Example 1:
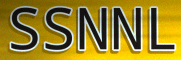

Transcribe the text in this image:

SSNNL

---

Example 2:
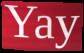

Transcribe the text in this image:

Yay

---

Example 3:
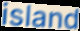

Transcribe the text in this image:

island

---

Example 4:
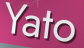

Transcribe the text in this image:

Yato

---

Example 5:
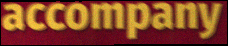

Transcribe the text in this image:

accompany